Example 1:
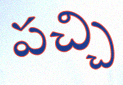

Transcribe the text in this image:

పచ్చి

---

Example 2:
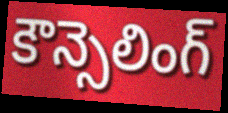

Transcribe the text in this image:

కౌన్సెలింగ్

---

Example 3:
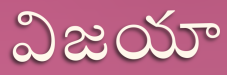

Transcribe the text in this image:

విజయా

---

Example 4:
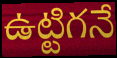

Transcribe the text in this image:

ఉట్టిగనే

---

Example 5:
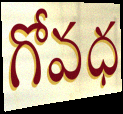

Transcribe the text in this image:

గోవధ